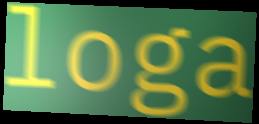
loga